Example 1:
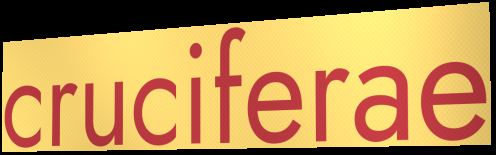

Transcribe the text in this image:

cruciferae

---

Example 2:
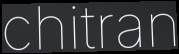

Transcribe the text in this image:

chitran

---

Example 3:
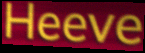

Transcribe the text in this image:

Heeve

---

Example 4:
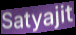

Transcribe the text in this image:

Satyajit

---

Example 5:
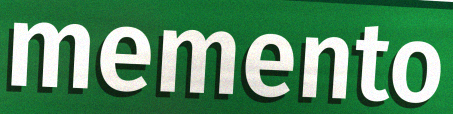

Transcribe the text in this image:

memento